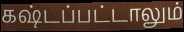
கஷ்டப்பட்டாலும்